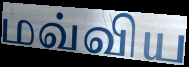
மவ்விய